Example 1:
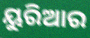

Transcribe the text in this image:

ୟୁରିଆର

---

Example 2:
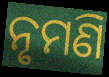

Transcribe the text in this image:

ନୃମଣି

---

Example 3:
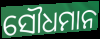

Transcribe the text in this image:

ସୌଧମାନ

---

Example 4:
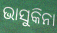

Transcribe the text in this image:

ଭାସୁକିନା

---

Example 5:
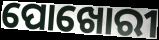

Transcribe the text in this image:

ପୋଖୋରୀ